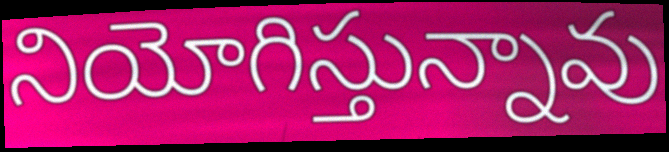
నియోగిస్తున్నావు